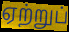
ஏற்றுப்